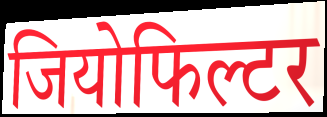
जियोफिल्टर